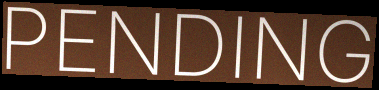
PENDING